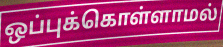
ஒப்புக்கொள்ளாமல்